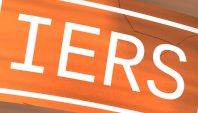
IERS